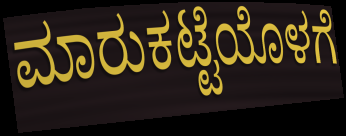
ಮಾರುಕಟ್ಟೆಯೊಳಗೆ